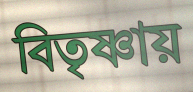
বিতৃষ্ণায়